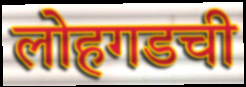
लोहगडची